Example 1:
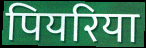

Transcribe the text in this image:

पियरिया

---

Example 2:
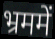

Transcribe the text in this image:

भ्रममें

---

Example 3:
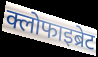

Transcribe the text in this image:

क्लोफाइब्रेट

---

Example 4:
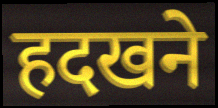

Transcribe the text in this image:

हदखने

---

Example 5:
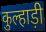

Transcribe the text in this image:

कुल्हाड़ी